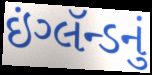
ઇંગ્લૅન્ડનું